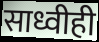
साध्वीही